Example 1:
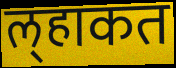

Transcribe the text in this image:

ल्हाकत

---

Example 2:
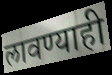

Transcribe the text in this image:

लावण्याही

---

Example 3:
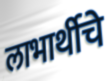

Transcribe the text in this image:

लाभार्थीचे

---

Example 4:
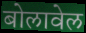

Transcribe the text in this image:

बोलावेल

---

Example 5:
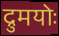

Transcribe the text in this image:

द्रुमयोः